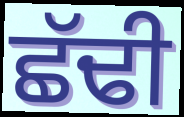
ਛੱਢੀ